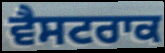
ਵੈਸਟਰਾਕ